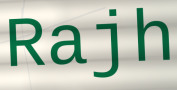
Rajh